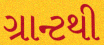
ગ્રાન્ટથી